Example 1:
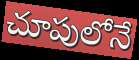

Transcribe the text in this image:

చూపులోనే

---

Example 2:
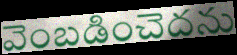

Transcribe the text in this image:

వెంబడించెదను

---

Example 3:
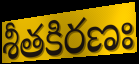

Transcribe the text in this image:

శీతకిరణః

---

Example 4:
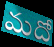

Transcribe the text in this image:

మదో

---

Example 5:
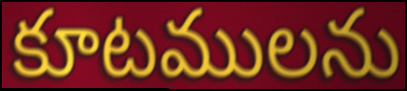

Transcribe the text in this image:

కూటములను